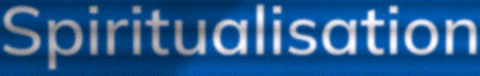
Spiritualisation